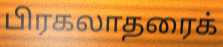
பிரகலாதரைக்